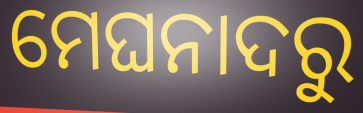
ମେଘନାଦରୁ